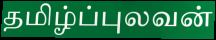
தமிழ்ப்புலவன்